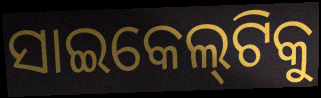
ସାଇକେଲ୍‌ଟିକୁ